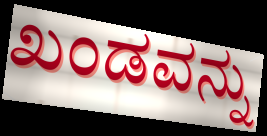
ಖಂಡವನ್ನು